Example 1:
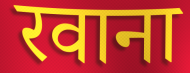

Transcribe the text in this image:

रवाना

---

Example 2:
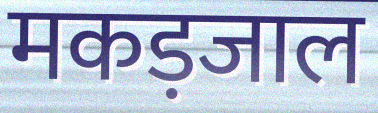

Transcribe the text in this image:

मकड़जाल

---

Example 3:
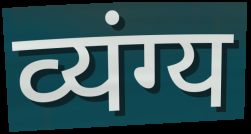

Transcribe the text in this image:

व्यंग्य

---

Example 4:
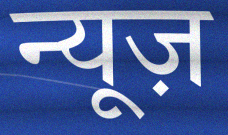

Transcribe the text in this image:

न्यूज़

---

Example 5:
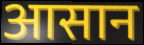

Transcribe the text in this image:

आसान